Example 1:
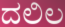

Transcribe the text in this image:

ದಲಿಲ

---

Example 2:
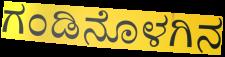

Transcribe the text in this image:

ಗಂಡಿನೊಳಗಿನ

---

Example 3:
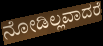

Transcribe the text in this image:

ನೋಡಿಲ್ಲವಾದರೆ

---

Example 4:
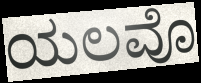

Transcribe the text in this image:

ಯಲವೊ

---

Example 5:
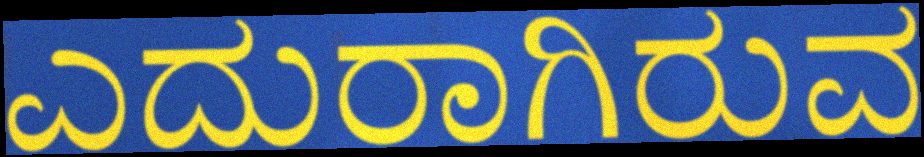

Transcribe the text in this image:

ಎದುರಾಗಿರುವ